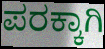
ಪರಕ್ಕಾಗಿ